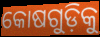
କୋଷଗୁଡ଼ିକୁ